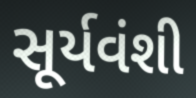
સૂર્યવંશી